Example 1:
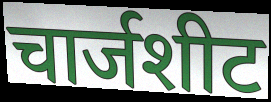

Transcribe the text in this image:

चार्जशीट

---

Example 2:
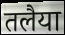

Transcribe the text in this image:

तलैया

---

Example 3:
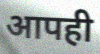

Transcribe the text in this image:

आपही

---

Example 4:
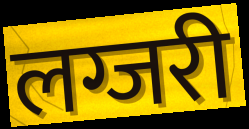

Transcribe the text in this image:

लग्जरी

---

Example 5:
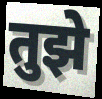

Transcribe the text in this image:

तुझे